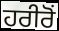
ਹਰੀਰੋਂ